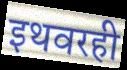
इथवरही